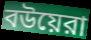
বউয়েরা